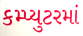
કમ્પ્યુટરમાં